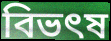
বিভৎষ